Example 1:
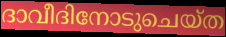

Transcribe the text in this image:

ദാവീദിനോടുചെയ്ത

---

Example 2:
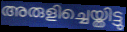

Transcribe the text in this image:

അരുളിച്ചെയ്തിട്ടു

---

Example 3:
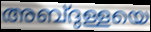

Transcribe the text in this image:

അബ്ദുള്ളയെ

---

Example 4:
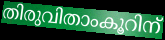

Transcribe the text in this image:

തിരുവിതാംകൂറിന്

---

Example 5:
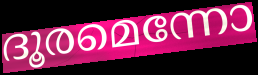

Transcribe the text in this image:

ദൂരമെന്നോ